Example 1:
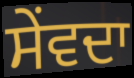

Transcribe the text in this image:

ਸੇਂਵਦਾ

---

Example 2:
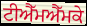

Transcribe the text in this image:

ਟੀਐੱਮਐੱਮਕੇ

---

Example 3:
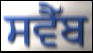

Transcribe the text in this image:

ਸਵੈੱਬ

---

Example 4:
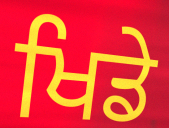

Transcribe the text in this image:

ਖਿਡੇ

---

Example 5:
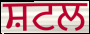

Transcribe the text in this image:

ਸ਼ਟਲ